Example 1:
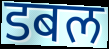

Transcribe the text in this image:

डबल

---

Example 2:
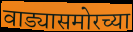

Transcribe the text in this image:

वाड्यासमोरच्या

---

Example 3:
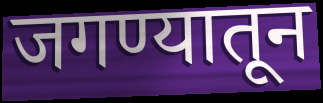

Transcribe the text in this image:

जगण्यातून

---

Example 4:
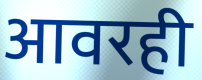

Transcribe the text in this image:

आवरही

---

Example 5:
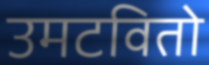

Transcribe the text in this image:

उमटवितो